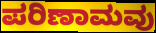
ಪರಿಣಾಮವು